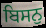
ਬਿਸਨੁ